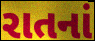
રાતનાં